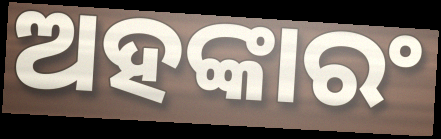
ଅହଙ୍କାରଂ